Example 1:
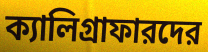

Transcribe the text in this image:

ক্যালিগ্রাফারদের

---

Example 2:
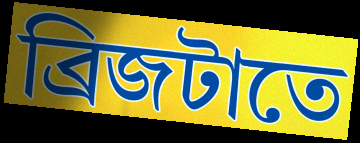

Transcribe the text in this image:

ব্রিজটাতে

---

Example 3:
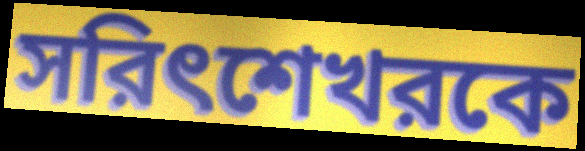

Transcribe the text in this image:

সরিৎশেখরকে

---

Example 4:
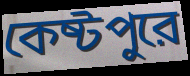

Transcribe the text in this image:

কেষ্টপুরে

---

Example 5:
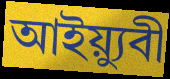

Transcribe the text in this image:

আইয়্যুবী